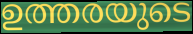
ഉത്തരയുടെ